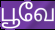
பூவே